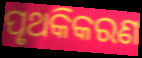
ପୃଥକିକରଣ